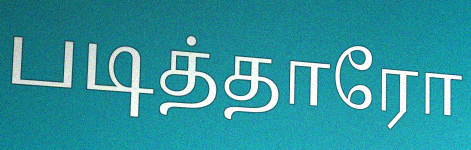
படித்தாரோ